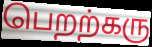
பெறற்கரு